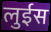
लुईस